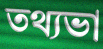
তথ্যভা